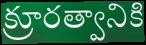
క్రూరత్వానికి